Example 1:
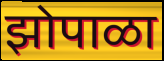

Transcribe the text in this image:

झोपाळा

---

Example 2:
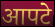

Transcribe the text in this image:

आपटे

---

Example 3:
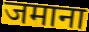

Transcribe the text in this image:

जमाना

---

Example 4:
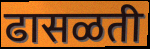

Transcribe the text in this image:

ढासळती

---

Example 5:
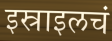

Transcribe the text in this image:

इस्राइलचं